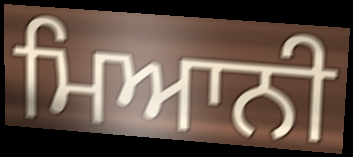
ਮਿਆਨੀ